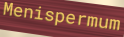
Menispermum